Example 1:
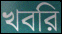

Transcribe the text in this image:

খবরি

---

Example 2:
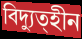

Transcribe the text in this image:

বিদ্যুত্হীন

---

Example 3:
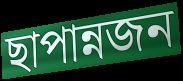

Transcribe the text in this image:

ছাপান্নজন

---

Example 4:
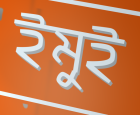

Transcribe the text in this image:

ইমুই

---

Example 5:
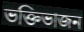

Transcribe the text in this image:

ভক্তিভাজন